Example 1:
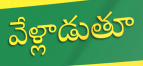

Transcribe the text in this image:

వేళ్లాడుతూ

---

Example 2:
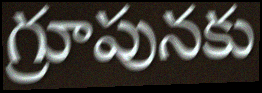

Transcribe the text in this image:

గ్రూపునకు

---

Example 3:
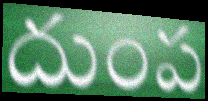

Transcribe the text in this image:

దుంప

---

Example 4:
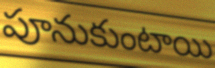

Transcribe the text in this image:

పూనుకుంటాయి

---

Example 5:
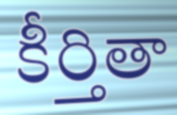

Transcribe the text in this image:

కీర్తితా